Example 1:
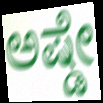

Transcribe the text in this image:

ಅಷ್ಡೇ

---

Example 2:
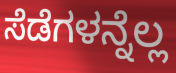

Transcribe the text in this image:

ಸೆಡೆಗಳನ್ನೆಲ್ಲ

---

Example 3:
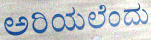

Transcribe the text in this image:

ಅರಿಯಲೆಂದು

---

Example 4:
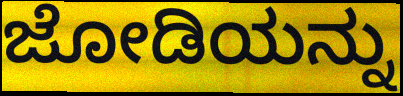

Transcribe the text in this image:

ಜೋಡಿಯನ್ನು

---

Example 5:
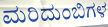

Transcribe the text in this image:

ಮರಿದುಂಬಿಗಳ